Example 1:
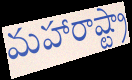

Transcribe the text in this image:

మహారాష్ట్రా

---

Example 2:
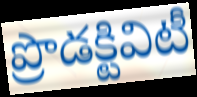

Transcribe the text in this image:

ప్రొడక్టివిటీ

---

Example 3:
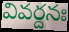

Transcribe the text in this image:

వివర్దనః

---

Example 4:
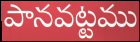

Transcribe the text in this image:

పానవట్టము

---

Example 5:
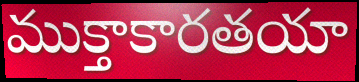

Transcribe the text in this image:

ముక్తాకారతయా